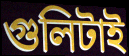
গুলিটাই